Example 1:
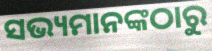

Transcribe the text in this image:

ସଭ୍ୟମାନଙ୍କଠାରୁ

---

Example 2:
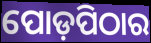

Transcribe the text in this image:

ପୋଡ଼ପିଠାର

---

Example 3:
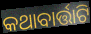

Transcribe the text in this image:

କଥାବାର୍ତ୍ତାଟି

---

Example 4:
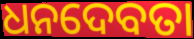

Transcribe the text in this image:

ଧନଦେବତା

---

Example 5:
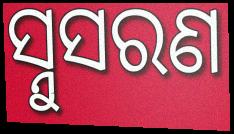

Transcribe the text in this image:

ସ୍ନୁସରଣ